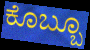
ಕೊಬ್ಬೂ